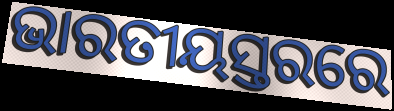
ଭାରତୀୟସ୍ତରରେ